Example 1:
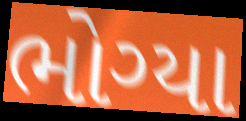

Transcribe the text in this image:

ભોગ્યા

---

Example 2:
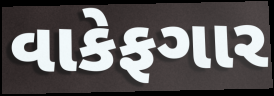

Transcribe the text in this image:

વાકેફગાર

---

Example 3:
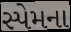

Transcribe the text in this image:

સ્પેમના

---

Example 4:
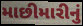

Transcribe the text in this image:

માછીમારીનું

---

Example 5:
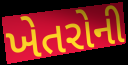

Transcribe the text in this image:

ખેતરોની